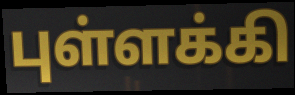
புள்ளக்கி